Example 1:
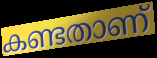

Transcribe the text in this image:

കണ്ടതാണ്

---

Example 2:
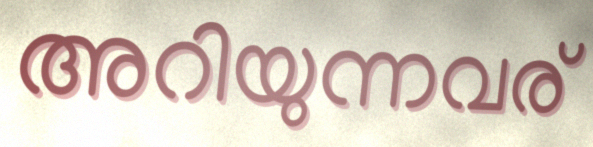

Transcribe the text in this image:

അറിയുന്നവര്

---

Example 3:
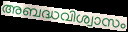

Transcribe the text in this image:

അബദ്ധവിശ്വാസം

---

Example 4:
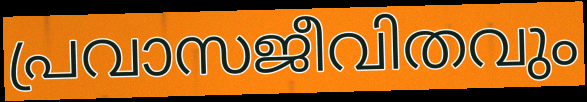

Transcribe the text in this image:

പ്രവാസജീവിതവും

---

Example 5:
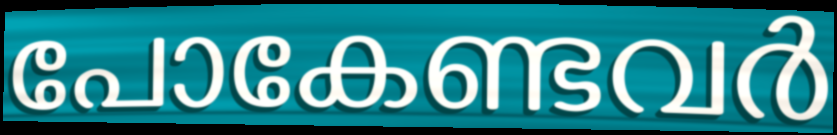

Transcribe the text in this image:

പോകേണ്ടവർ